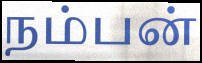
நம்பன்